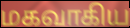
மகவாகிய